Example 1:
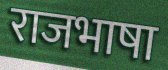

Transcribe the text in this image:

राजभाषा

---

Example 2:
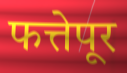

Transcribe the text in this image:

फत्तेपूर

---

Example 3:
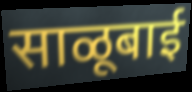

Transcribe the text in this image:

साळूबाई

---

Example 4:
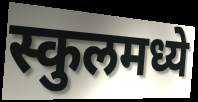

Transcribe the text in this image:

स्कुलमध्ये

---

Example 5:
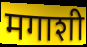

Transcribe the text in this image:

मगाशी